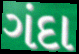
ગંદા